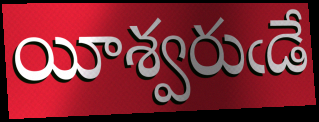
యీశ్వరుఁడే